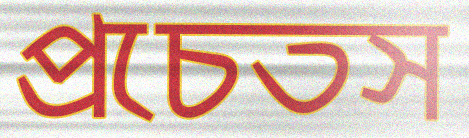
প্রচেতস